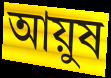
আয়ুষ